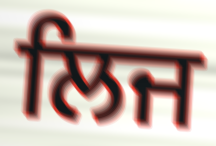
ਲਿਜ